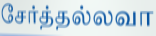
சேர்த்தல்லவா